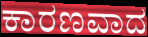
ಕಾರಣವಾದ